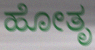
ಹೋತೃ